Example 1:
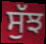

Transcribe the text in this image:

ਸੁੱਝ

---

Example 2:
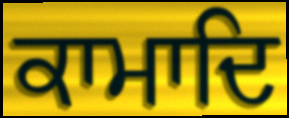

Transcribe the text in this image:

ਕਾਮਾਦਿ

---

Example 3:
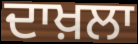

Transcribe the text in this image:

ਦਾਖ਼ਲਾ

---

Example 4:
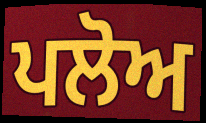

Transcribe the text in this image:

ਪਲੋਅ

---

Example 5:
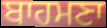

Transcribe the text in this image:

ਬਾਹਮਣਾ